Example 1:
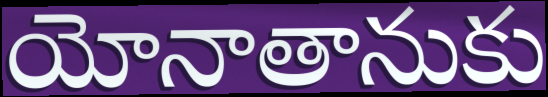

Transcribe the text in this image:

యోనాతానుకు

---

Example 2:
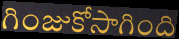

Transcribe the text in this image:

గింజుకోసాగింది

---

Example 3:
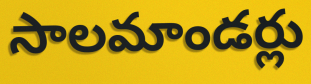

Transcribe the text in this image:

సాలమాండర్లు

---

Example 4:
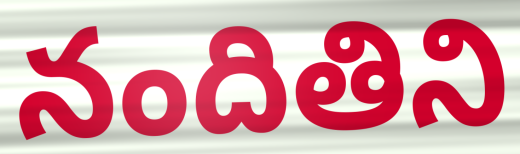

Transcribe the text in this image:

నందితిని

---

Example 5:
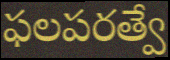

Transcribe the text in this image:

ఫలపరత్వే